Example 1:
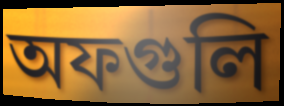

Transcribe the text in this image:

অফগুলি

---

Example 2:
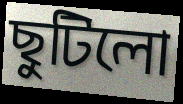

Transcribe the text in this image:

ছুটিলো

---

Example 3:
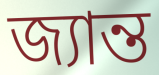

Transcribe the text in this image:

জ্যান্ত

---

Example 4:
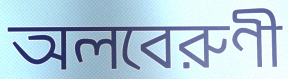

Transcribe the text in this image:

অলবেরুণী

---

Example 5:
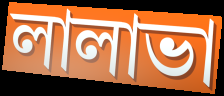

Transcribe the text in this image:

লালাভা